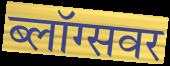
ब्लॉग्सवर